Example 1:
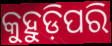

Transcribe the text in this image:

କୁହୁଡ଼ିପରି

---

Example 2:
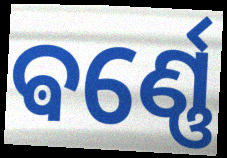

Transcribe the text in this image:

ଵର୍ଣ୍ଣେ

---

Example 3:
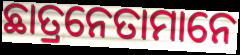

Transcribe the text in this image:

ଛାତ୍ରନେତାମାନେ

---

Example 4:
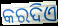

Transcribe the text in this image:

କରଦିଏ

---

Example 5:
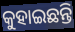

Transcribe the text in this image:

କୁହାଇଛନ୍ତି